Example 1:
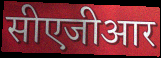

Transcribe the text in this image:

सीएजीआर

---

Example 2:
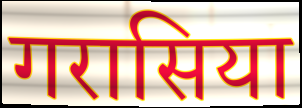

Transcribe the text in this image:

गरासिया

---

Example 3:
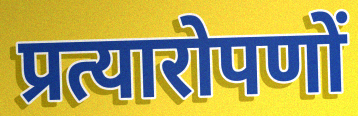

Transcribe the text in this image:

प्रत्यारोपणों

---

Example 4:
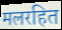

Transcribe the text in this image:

मलरहित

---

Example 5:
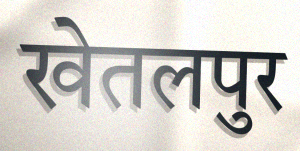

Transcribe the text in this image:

खेतलपुर